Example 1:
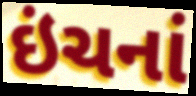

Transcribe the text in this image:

ઇંચનાં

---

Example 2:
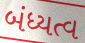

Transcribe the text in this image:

બંધ્યત્વ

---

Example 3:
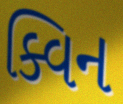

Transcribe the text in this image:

ક્વિન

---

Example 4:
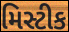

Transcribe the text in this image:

મિસ્ટીક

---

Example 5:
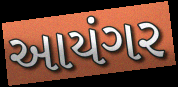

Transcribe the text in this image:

આયંગર